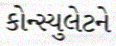
કોન્સ્યુલેટને